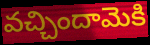
వచ్చిందామెకి